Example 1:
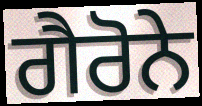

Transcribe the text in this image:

ਗੈਰੋਨੇ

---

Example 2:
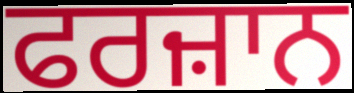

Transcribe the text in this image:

ਫਰਜ਼ਾਨ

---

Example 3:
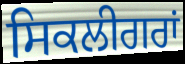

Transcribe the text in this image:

ਸਿਕਲੀਗਰਾਂ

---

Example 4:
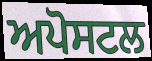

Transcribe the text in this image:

ਅਪੋਸਟਲ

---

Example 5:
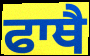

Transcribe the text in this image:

ਫਾਥੈ